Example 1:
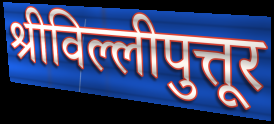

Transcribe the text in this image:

श्रीविल्लीपुत्तूर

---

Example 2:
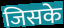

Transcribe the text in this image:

जिसके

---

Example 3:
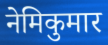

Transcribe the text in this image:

नेमिकुमार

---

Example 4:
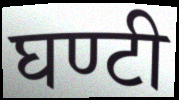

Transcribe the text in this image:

घण्टी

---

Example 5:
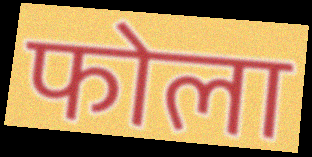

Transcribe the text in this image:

फोला